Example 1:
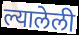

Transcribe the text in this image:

ल्यालेली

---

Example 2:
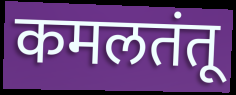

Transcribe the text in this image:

कमलतंतू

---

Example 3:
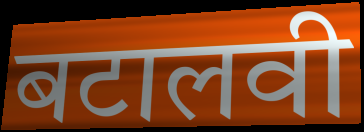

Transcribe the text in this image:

बटालवी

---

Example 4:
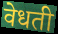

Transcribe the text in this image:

वेधती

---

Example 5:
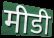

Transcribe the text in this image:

मीडी